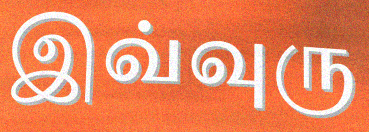
இவ்வுரு